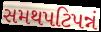
સમથપટિપન્નં